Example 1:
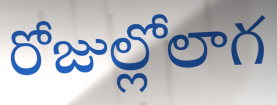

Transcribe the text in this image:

రోజుల్లోలాగ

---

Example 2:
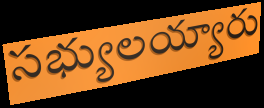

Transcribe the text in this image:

సభ్యులయ్యారు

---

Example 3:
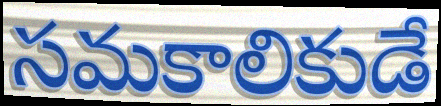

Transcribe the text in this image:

సమకాలికుడే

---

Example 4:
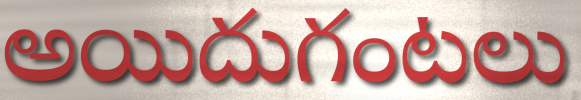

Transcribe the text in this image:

అయిదుగంటలు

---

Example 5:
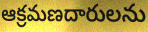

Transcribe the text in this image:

ఆక్రమణదారులను